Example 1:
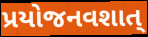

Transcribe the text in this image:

પ્રયોજનવશાત્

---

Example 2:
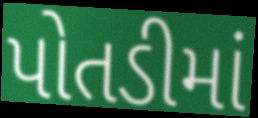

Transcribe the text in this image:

પોતડીમાં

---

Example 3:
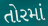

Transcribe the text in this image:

તોરમાં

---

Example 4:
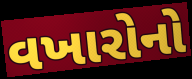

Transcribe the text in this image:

વખારોનો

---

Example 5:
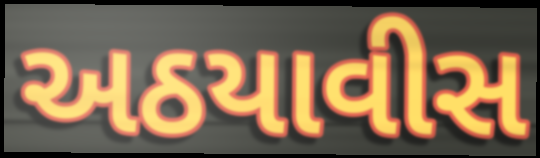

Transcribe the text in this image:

અઠયાવીસ